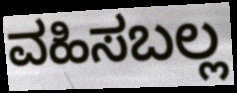
ವಹಿಸಬಲ್ಲ